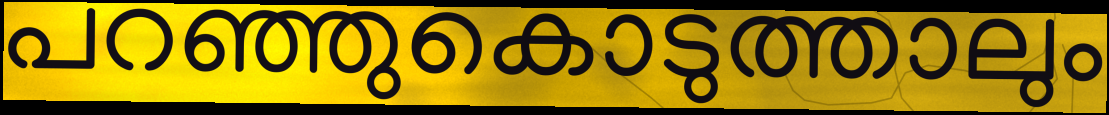
പറഞ്ഞുകൊടുത്താലും